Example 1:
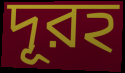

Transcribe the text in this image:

দূরহ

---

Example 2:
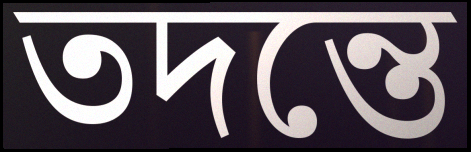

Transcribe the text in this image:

তদন্তে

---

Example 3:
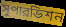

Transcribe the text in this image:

সুপারভিশন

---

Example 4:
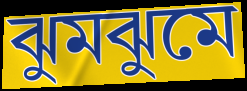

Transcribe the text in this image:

ঝুমঝুমে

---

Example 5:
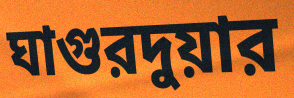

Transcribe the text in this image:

ঘাগুরদুয়ার